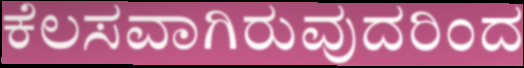
ಕೆಲಸವಾಗಿರುವುದರಿಂದ